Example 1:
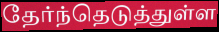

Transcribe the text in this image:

தேர்ந்தெடுத்துள்ள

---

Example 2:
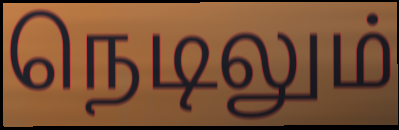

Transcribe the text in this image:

நெடிலும்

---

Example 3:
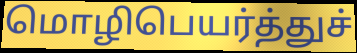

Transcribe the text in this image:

மொழிபெயர்த்துச்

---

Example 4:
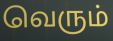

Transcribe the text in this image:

வெரும்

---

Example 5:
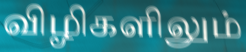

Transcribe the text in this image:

விழிகளிலும்